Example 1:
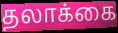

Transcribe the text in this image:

தலாக்கை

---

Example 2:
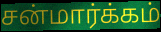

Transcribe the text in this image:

சன்மார்க்கம்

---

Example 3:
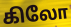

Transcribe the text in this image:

கிலோ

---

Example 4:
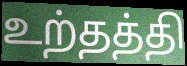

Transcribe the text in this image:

உற்தத்தி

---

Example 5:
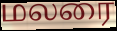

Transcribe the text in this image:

மலரை